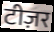
टीज़र